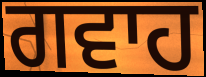
ਗਵਾਹ